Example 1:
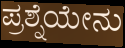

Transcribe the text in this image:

ಪ್ರಶ್ನೆಯೇನು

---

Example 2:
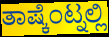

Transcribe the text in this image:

ತಾಷ್ಕೆಂಟ್ನಲ್ಲಿ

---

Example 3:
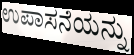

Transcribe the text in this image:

ಉಪಾಸನೆಯನ್ನು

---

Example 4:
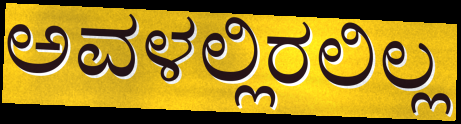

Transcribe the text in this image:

ಅವಳಲ್ಲಿರಲಿಲ್ಲ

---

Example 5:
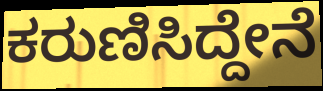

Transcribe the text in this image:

ಕರುಣಿಸಿದ್ದೇನೆ